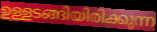
ഉള്ളടങ്ങിയിരിക്കുന്ന